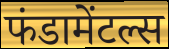
फंडामेंटल्स